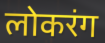
लोकरंग